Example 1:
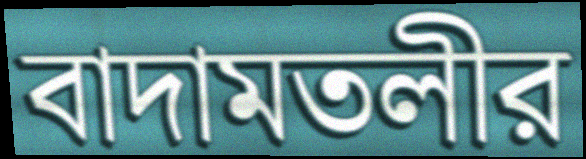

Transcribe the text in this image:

বাদামতলীর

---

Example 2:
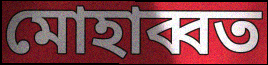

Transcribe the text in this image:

মোহাব্বত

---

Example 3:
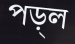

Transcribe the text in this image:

পড়্ল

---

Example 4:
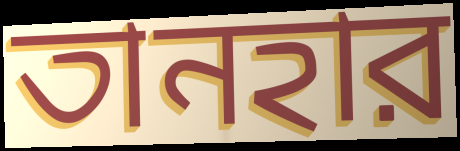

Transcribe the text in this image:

তানহার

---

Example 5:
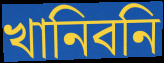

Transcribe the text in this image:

খানিবনি